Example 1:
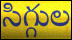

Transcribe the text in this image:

సిగ్గుల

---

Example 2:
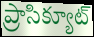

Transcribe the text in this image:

ప్రాసిక్యూట్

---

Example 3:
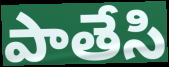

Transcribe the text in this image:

పాతేసి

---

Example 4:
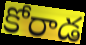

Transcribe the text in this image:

కోరాడ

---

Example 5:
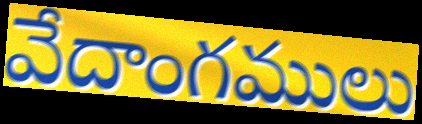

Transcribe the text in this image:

వేదాంగములు